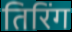
तिरिंग